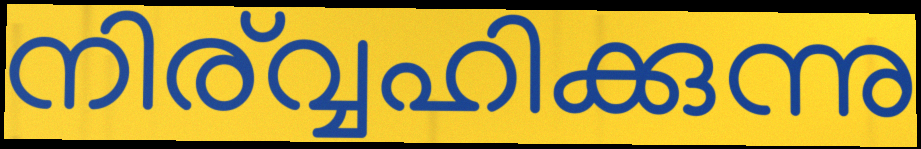
നിര്വ്വഹിക്കുന്നു